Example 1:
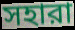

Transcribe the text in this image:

সহারা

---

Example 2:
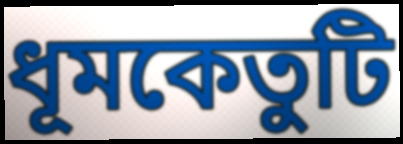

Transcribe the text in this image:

ধূমকেতুটি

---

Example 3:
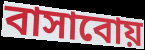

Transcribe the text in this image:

বাসাবোয়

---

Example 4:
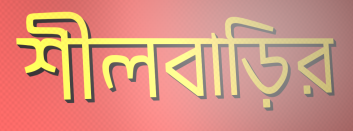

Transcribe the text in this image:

শীলবাড়ির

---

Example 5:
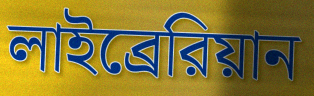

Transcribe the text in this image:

লাইব্রেরিয়ান